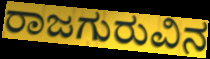
ರಾಜಗುರುವಿನ